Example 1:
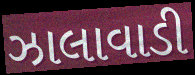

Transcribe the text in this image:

ઝાલાવાડી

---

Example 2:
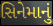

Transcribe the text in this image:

સિનેમાનું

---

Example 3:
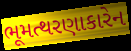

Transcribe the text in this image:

ભૂમત્થરણાકારેન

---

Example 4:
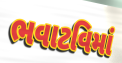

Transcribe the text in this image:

ભવાટવિમાં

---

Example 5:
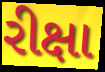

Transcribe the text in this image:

રીક્ષા